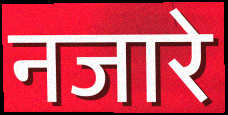
नजारे